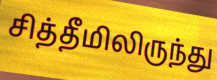
சித்தீமிலிருந்து